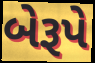
બેરૂપે